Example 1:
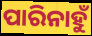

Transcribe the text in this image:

ପାରିନାହୁଁ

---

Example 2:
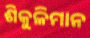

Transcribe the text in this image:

ଶିକୁଳିମାନ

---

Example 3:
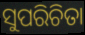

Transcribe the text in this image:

ସୁପରିଚିତା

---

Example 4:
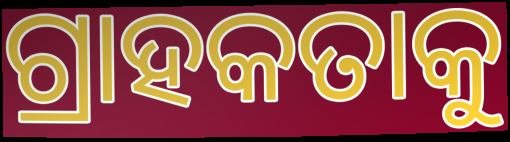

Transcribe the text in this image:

ଗ୍ରାହକତାକୁ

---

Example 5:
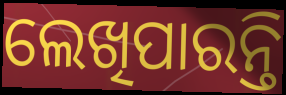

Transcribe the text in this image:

ଲେଖିପାରନ୍ତି